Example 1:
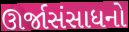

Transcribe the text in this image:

ઊર્જાસંસાધનો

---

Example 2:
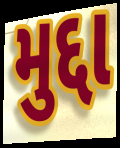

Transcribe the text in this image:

મુદ્દા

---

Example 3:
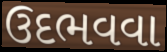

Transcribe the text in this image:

ઉદભવવા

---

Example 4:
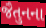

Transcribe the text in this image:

જૈતુનના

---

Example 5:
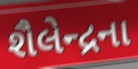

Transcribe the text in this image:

શૈલેન્દ્રના